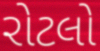
રોટલો